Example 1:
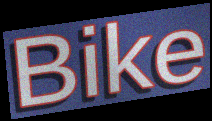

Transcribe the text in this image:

Bike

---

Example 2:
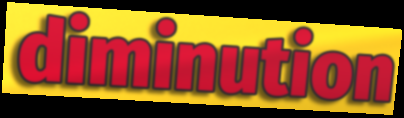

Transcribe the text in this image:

diminution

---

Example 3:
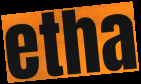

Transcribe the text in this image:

etha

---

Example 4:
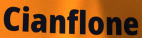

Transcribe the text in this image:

Cianflone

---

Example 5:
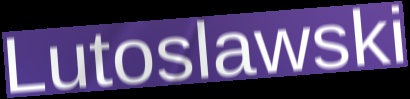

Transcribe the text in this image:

Lutoslawski